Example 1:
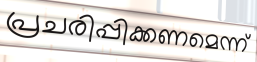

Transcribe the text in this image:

പ്രചരിപ്പിക്കണമെന്ന്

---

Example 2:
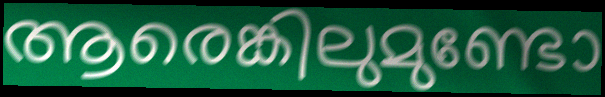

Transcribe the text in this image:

ആരെങ്കിലുമുണ്ടോ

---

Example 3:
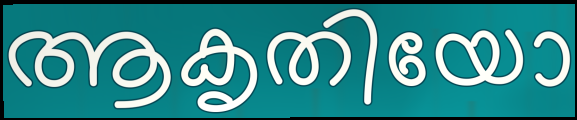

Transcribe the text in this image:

ആകൃതിയോ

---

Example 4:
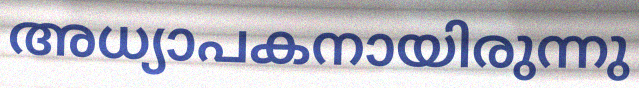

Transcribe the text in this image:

അധ്യാപകനായിരുന്നു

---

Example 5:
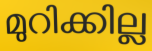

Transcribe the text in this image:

മുറിക്കില്ല